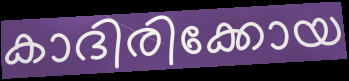
കാദിരിക്കോയ